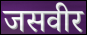
जसवीर